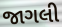
જાગલી